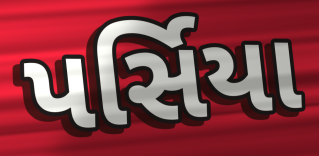
પર્સિયા